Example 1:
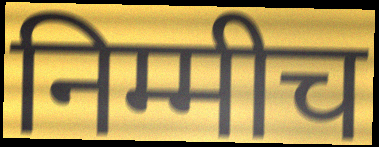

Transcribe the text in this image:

निम्मीच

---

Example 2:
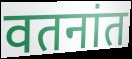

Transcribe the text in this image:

वतनांत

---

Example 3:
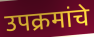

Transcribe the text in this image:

उपक्रमांचे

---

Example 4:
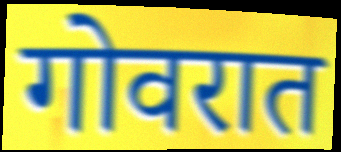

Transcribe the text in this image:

गोवरात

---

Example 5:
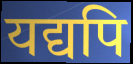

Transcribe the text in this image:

यद्यपि